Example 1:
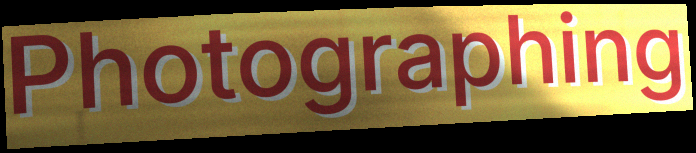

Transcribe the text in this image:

Photographing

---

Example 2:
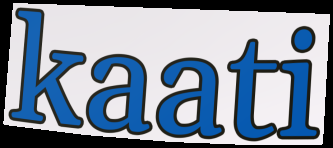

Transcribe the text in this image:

kaati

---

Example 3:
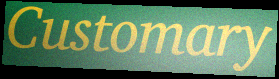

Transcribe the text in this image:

Customary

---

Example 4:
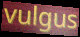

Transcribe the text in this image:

vulgus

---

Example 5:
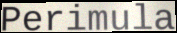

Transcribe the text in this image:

Perimula